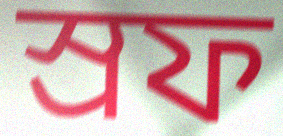
স্রফ